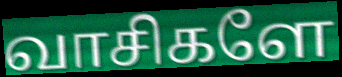
வாசிகளே